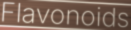
Flavonoids